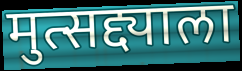
मुत्सद्द्याला